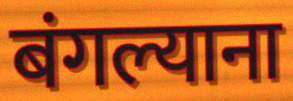
बंगल्याना